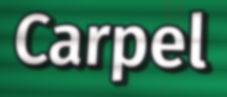
Carpel